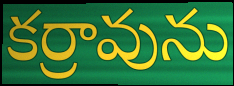
కర్రావును